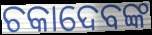
ଚକାଦେବଙ୍କ